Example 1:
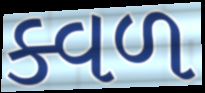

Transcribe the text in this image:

ક્વળ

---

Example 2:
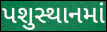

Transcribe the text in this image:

પશુસ્થાનમાં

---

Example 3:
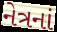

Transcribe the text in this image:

નેત્રનાં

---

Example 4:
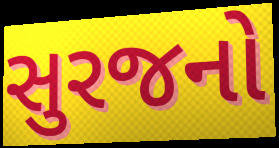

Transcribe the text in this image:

સુરજનો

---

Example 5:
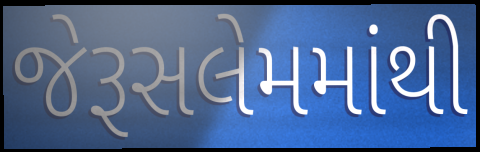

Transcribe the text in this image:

જેરૂસલેમમાંથી